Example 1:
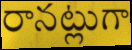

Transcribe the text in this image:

రానట్లుగా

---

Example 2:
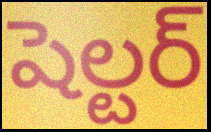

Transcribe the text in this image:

షెల్టర్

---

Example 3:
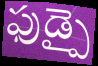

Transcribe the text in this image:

ఫుడ్పై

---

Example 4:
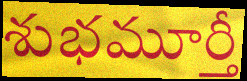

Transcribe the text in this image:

శుభమూర్తీ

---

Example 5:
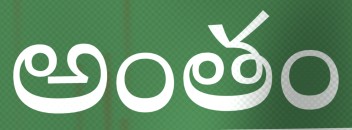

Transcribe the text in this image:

అంతం